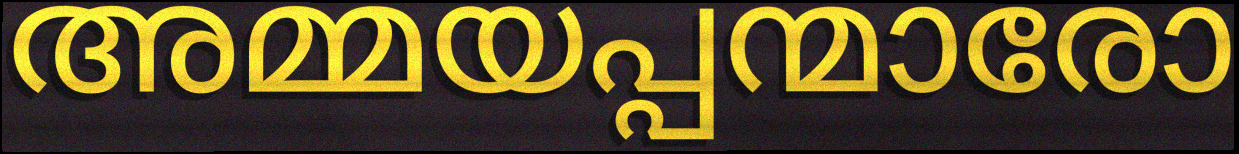
അമ്മയപ്പന്മാരോ